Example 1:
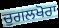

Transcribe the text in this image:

ਚੁਗਲਖੋਰਾ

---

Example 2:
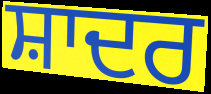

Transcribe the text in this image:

ਸ਼ਾਦਰ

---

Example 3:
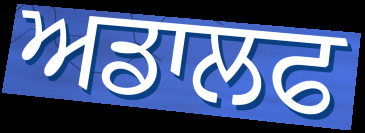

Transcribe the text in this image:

ਅਡਾਲਫ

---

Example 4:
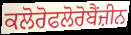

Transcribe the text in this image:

ਕਲੋਰੋਫਲੋਰੋਬੈਂਜ਼ੀਨ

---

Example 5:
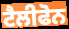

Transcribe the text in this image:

ਟੈਲੀਫੋਨ